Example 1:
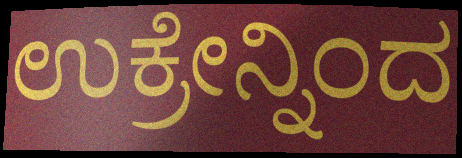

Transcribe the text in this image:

ಉಕ್ರೇನ್ನಿಂದ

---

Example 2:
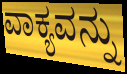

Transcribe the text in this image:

ವಾಕ್ಯವನ್ನು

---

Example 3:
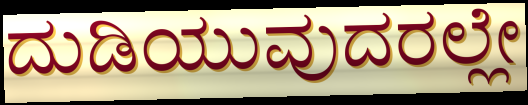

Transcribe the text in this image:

ದುಡಿಯುವುದರಲ್ಲೇ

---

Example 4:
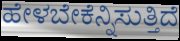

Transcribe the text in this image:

ಹೇಳಬೇಕೆನ್ನಿಸುತ್ತಿದೆ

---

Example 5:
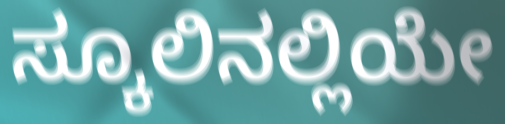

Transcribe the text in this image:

ಸ್ಕೂಲಿನಲ್ಲಿಯೇ